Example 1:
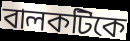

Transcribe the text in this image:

বালকটিকে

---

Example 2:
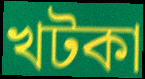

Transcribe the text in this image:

খটকা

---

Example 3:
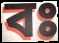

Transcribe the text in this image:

বঃ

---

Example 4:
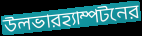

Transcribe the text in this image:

উলভারহ্যাম্পটনের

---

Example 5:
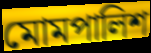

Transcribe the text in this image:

মোমপালিশ